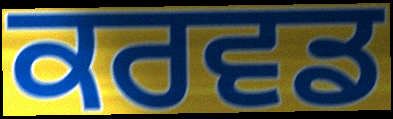
ਕਰਵਡ